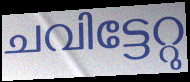
ചവിട്ടേറ്റു